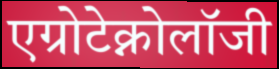
एग्रोटेक्नोलॉजी